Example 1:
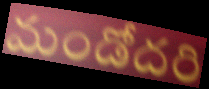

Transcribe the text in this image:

మండోదరి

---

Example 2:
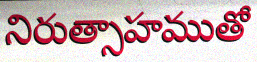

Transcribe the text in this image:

నిరుత్సాహముతో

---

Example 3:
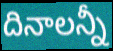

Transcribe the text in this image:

దినాలన్నీ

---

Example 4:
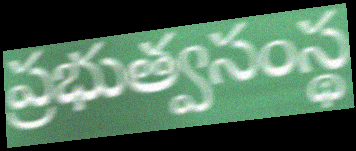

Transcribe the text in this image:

ప్రభుత్వసంస్థ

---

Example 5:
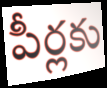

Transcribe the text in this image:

పీర్లకు